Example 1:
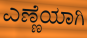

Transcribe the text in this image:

ಎಣ್ಣೆಯಾಗಿ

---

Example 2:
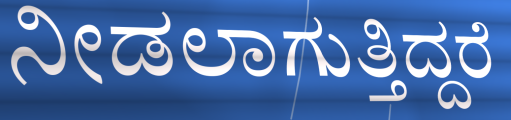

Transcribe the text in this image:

ನೀಡಲಾಗುತ್ತಿದ್ದರೆ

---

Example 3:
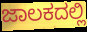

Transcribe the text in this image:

ಜಾಲಕದಲ್ಲಿ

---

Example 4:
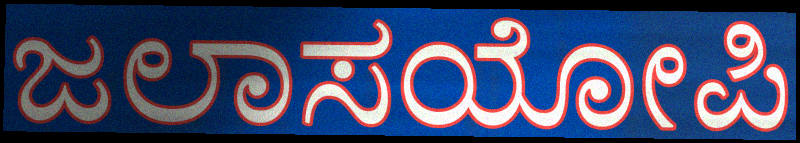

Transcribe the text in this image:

ಜಲಾಸಯೋಪಿ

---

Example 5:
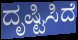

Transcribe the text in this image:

ದೃಷ್ಟಿಸಿದೆ